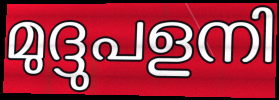
മുദ്ദുപളനി